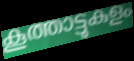
കൂത്താട്ടുകുളം